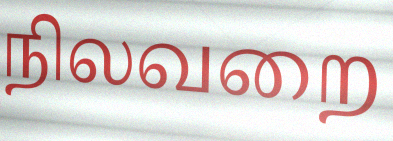
நிலவறை